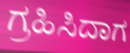
ಗ್ರಹಿಸಿದಾಗ